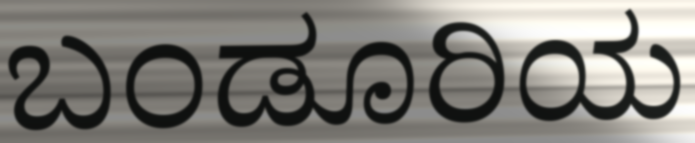
ಬಂಡೂರಿಯ